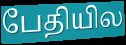
பேதியில